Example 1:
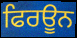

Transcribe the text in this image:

ਫਿਰਊਨ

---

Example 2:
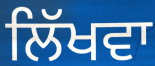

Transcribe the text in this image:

ਲਿੱਖਵਾ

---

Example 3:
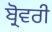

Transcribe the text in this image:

ਬ੍ਰੋਵਰੀ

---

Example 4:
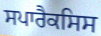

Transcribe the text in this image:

ਸਪਾਰੈਕਸਿਸ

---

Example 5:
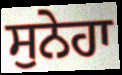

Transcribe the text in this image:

ਸੁਨੇਹਾ